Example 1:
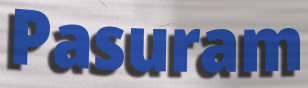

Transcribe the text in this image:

Pasuram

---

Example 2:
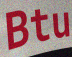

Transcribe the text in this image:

Btu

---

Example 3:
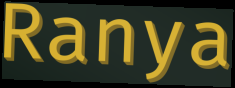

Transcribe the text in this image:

Ranya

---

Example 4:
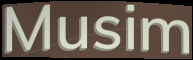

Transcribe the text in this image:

Musim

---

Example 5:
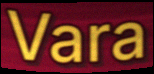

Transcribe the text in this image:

Vara